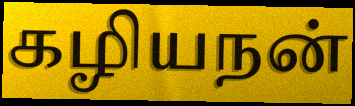
கழியநன்